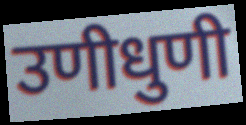
उणीधुणी